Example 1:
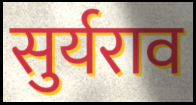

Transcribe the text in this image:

सुर्यराव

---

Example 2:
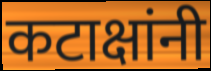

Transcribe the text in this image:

कटाक्षांनी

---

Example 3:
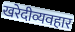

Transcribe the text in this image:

खरेदीव्यवहार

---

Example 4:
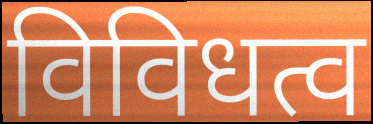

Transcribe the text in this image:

विविधत्व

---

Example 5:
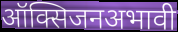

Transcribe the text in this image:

ऑक्सिजनअभावी